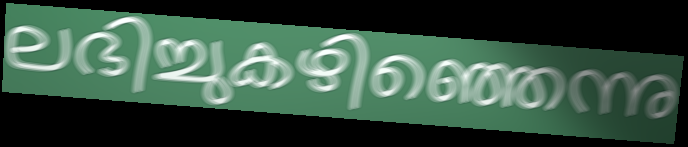
ലഭിച്ചുകഴിഞ്ഞെന്നു